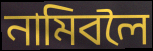
নামিবলৈ